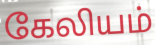
கேலியம்